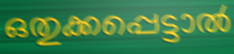
ഒതുക്കപ്പെട്ടാൽ